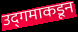
उद्‌गमाकडून